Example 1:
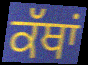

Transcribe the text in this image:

ਕੱਥਾਂ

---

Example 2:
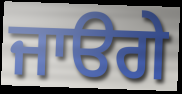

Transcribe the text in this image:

ਜਾੳਗੇ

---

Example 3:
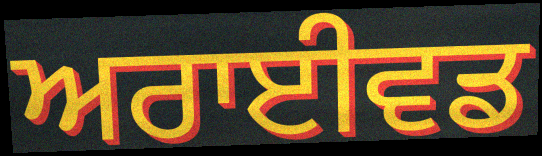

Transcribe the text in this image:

ਅਰਾਈਵਡ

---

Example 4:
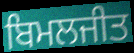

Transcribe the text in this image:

ਬਿਮਲਜੀਤ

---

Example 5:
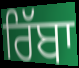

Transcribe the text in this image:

ਰਿੱਬਾ